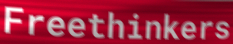
Freethinkers